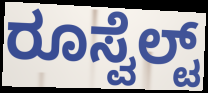
ರೂಸ್ವೆಲ್ಟ್